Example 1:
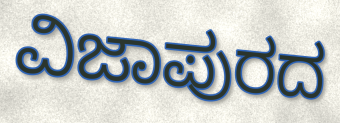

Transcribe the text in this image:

ವಿಜಾಪುರದ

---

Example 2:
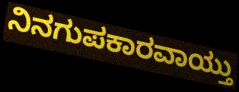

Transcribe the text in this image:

ನಿನಗುಪಕಾರವಾಯ್ತು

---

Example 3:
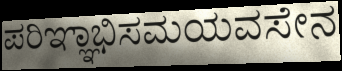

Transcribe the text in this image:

ಪರಿಞ್ಞಾಭಿಸಮಯವಸೇನ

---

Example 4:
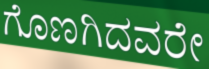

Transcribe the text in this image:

ಗೊಣಗಿದವರೇ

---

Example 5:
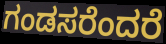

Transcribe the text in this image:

ಗಂಡಸರೆಂದರೆ